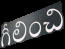
గీలించి